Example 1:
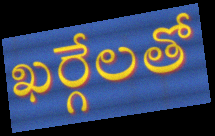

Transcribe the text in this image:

ఖర్గేలతో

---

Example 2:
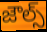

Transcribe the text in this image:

జౌల్స్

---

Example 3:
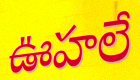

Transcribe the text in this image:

ఊహలే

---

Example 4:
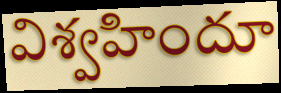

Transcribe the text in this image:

విశ్వహిందూ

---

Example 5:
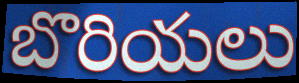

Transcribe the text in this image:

బొరియలు